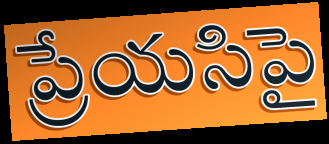
ప్రేయసిపై